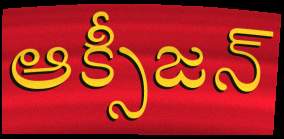
ఆక్సీజన్